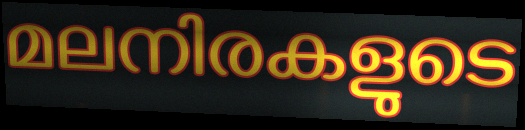
മലനിരകളുടെ